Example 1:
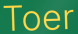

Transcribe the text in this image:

Toer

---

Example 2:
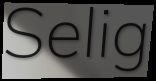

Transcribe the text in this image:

Selig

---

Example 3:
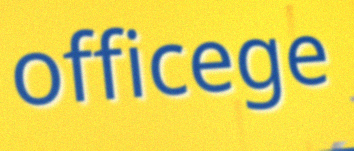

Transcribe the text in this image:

officege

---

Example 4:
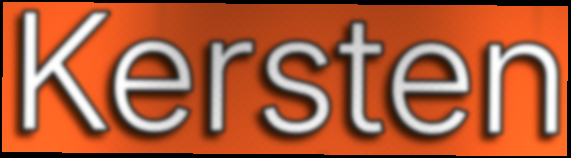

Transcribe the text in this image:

Kersten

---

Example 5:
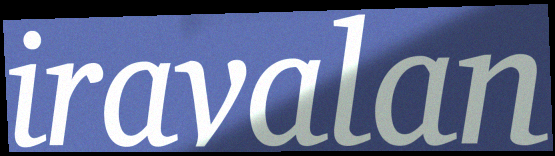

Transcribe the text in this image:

iravalan